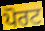
ਪੋਰਟ